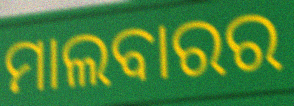
ମାଲବାରର